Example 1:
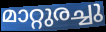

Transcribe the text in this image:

മാറ്റുരച്ചു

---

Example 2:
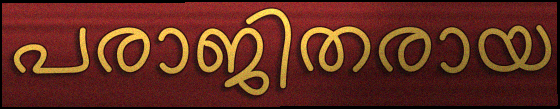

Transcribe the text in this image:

പരാജിതരായ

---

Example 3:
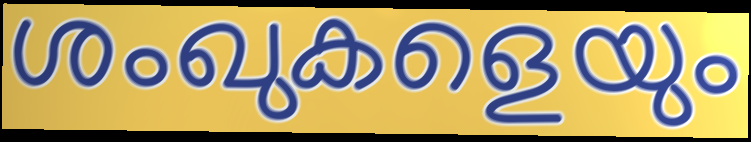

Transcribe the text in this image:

ശംഖുകളെയും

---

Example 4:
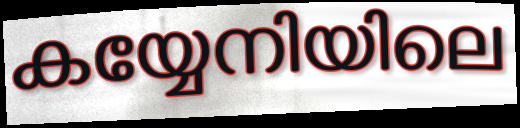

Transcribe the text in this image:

കയ്യേനിയിലെ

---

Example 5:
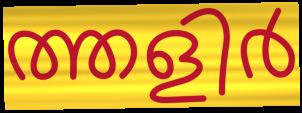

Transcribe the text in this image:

ത്തളിർ